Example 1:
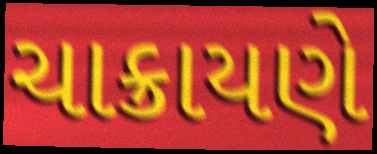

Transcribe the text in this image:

ચાક્રાયણે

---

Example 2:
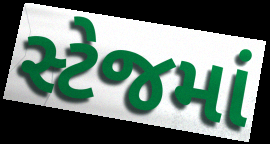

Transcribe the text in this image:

સ્ટેજમાં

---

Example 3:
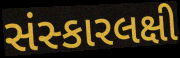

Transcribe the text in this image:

સંસ્કારલક્ષી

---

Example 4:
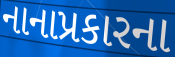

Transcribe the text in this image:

નાનાપ્રકારના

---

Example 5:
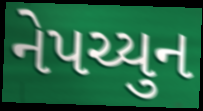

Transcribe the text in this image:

નેપચ્યુન